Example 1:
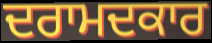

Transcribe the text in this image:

ਦਰਾਮਦਕਾਰ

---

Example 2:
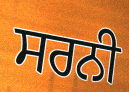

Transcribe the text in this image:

ਸਰਨੀ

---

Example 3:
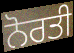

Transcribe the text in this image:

ਨੋਰਤੀ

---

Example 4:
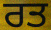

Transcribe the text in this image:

ਰਤ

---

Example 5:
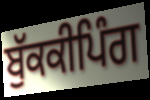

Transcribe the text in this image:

ਬੁੱਕਕੀਪਿੰਗ